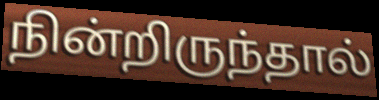
நின்றிருந்தால்